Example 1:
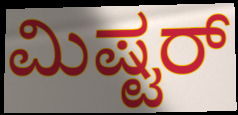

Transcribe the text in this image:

ಮಿಷ್ಟರ್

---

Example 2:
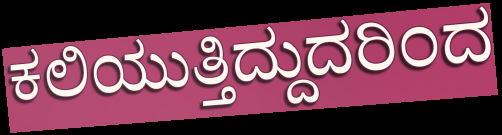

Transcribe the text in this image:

ಕಲಿಯುತ್ತಿದ್ದುದರಿಂದ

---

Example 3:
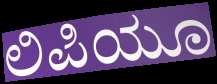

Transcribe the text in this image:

ಲಿಪಿಯೂ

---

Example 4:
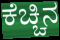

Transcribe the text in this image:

ಕೆಚ್ಚಿನ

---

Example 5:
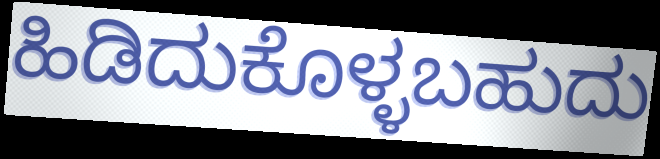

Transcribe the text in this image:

ಹಿಡಿದುಕೊಳ್ಳಬಹುದು